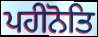
ਪਹੀਨੋਤਿ